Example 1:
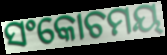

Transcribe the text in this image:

ସଂକୋଚମୟ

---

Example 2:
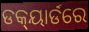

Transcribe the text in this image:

ଡକ୍‍ୟାର୍ଡରେ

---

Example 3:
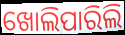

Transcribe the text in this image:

ଖୋଲିପାରିଲି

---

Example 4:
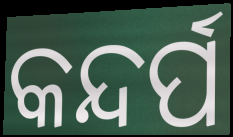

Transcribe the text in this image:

କନ୍ଦର୍ପ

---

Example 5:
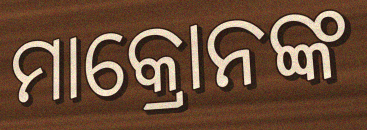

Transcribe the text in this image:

ମାକ୍ରୋନଙ୍କ